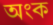
অংক